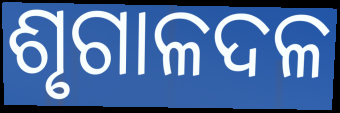
ଶୃଗାଳଦଳ